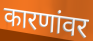
कारणांवर